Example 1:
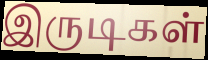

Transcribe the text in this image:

இருடிகள்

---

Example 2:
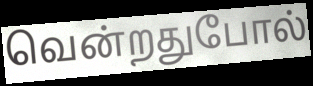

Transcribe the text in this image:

வென்றதுபோல்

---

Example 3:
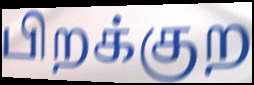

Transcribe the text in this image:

பிறக்குற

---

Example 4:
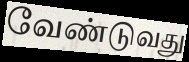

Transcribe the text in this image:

வேண்டுவது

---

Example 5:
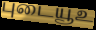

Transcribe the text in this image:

புடையூஉ